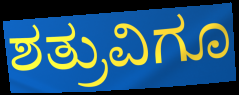
ಶತ್ರುವಿಗೂ